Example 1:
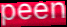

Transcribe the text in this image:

peen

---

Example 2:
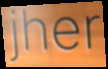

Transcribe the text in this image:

jher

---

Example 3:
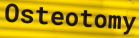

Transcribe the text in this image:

Osteotomy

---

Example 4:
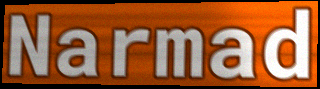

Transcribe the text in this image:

Narmad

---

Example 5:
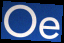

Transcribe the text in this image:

Oe